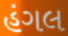
હંગલ